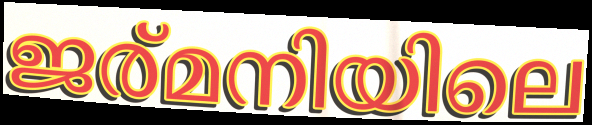
ജര്മനിയിലെ